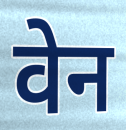
वेन